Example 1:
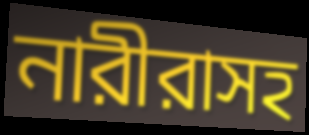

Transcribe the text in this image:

নারীরাসহ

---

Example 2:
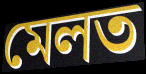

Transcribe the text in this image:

মেলত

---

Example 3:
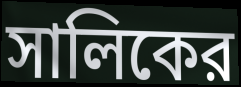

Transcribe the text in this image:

সালিকের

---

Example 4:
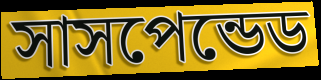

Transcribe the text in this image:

সাসপেন্ডেড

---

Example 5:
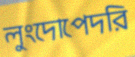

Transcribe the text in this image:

লুংদোপেদরি